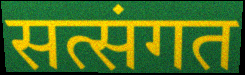
सत्संगत